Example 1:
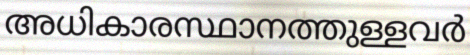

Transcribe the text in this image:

അധികാരസ്ഥാനത്തുള്ളവർ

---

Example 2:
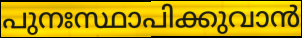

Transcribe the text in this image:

പുനഃസ്ഥാപിക്കുവാൻ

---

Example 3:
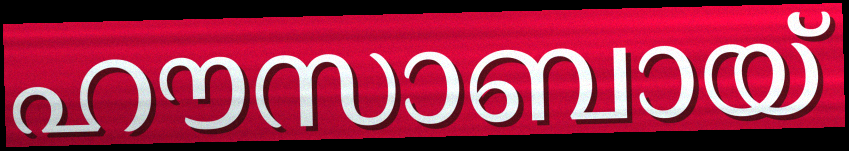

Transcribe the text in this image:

ഹൗസാബായ്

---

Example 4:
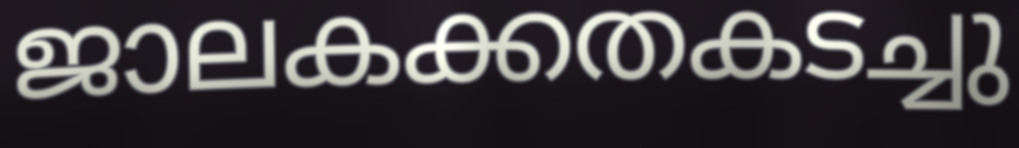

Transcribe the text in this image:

ജാലകക്കതകടച്ചു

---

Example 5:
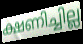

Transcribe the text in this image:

ക്ഷണിച്ചില്ല